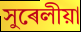
সুৰেলীয়া